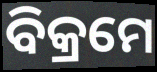
ବିକ୍ରମେ